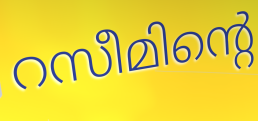
റസീമിന്റെ